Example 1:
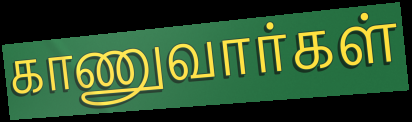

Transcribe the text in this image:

காணுவார்கள்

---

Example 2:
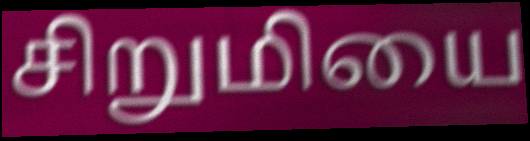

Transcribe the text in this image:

சிறுமியை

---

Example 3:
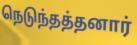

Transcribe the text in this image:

நெடுந்தத்தனார்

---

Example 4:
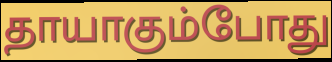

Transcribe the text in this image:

தாயாகும்போது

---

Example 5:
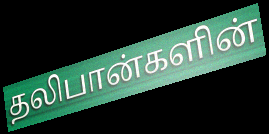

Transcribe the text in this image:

தலிபான்களின்